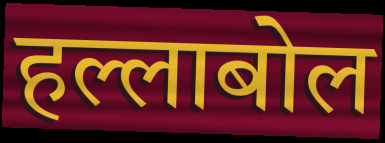
हल्लाबोल